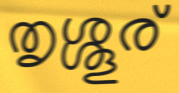
തൃശ്ശൂര്